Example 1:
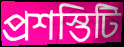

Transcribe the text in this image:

প্রশস্তিটি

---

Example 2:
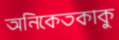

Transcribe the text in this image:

অনিকেতকাকু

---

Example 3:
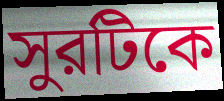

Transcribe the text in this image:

সুরটিকে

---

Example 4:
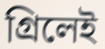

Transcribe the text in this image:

গ্রিলেই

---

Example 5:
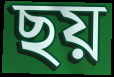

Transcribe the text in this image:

ছয়